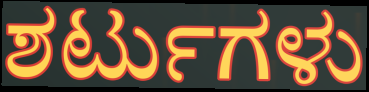
ಶರ್ಟುಗಳು